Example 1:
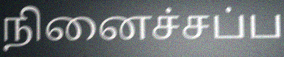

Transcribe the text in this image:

நினைச்சப்ப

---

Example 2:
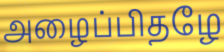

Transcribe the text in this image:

அழைப்பிதழே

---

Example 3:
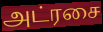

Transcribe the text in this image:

அட்ரசை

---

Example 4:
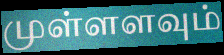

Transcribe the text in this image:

முள்ளளவும்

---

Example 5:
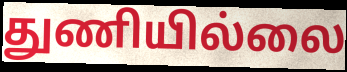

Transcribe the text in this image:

துணியில்லை